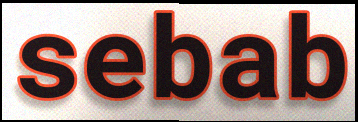
sebab